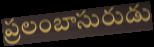
ప్రలంబాసురుడు